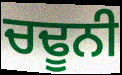
ਚਢੂਨੀ